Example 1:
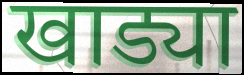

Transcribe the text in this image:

खाड्या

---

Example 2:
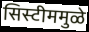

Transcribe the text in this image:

सिस्टीममुळे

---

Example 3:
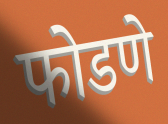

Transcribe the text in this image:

फोडणे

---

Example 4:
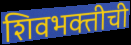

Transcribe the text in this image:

शिवभक्तीची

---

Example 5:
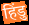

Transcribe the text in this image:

हिंडु